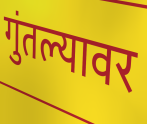
गुंतल्यावर